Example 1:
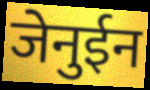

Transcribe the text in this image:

जेनुईन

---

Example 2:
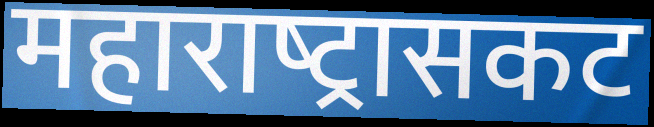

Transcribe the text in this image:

महाराष्ट्रासकट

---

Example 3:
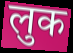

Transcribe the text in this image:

लुक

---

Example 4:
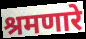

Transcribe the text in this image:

श्रमणारे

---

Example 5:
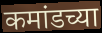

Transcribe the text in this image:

कमांडच्या